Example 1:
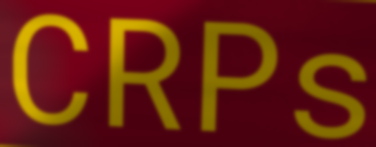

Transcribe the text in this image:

CRPs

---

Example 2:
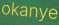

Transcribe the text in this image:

okanye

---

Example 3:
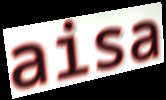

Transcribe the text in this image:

aisa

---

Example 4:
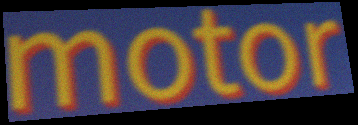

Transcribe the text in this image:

motor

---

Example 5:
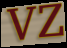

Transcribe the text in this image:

VZ